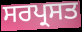
ਸਰਪ੍ਰਸਤ